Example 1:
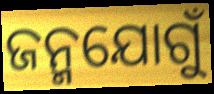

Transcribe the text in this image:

ଜନ୍ମଯୋଗୁଁ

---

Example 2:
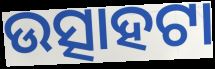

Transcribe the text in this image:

ଉତ୍ସାହଟା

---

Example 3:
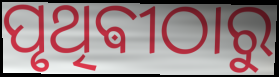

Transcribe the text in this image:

ପୃଥିଵୀଠାରୁ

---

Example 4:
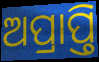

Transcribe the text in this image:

ଅପ୍ରାପ୍ତି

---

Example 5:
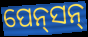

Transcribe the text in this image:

ପେନ୍‍ସନ୍